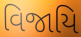
વિજાયિ